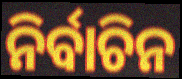
ନିର୍ବାଚିନ